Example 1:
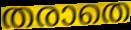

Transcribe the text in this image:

തരാതെ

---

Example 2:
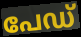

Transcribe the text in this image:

പേഡ്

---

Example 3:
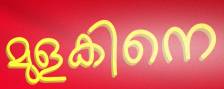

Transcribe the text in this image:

മുളകിനെ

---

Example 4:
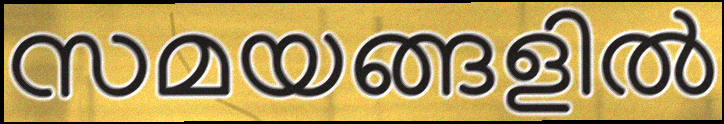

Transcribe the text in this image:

സമയങ്ങളിൽ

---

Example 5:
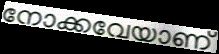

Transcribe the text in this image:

നോക്കവേയാണ്